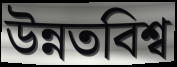
উন্নতবিশ্ব